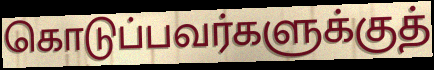
கொடுப்பவர்களுக்குத்